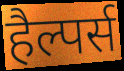
हैल्पर्स